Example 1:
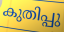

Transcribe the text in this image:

കുതിപ്പു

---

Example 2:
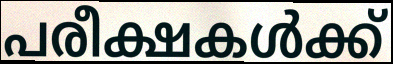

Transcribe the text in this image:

പരീക്ഷകൾക്ക്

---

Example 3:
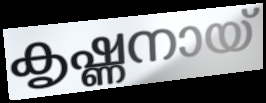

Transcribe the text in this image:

കൃഷ്ണനായ്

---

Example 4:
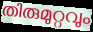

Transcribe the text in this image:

തിരുമുറ്റവും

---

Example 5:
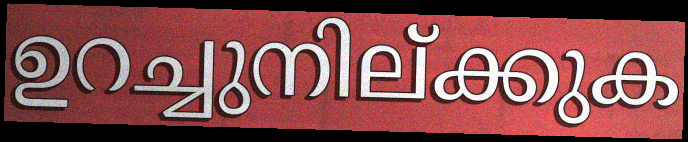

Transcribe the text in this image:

ഉറച്ചുനില്ക്കുക